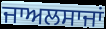
ਜਾਅਲਸਾਜਾਂ